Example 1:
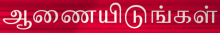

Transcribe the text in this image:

ஆணையிடுங்கள்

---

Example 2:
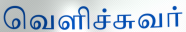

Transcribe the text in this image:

வெளிச்சுவர்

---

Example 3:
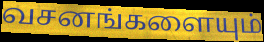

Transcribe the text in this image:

வசனங்களையும்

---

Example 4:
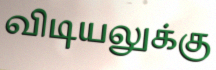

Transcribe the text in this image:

விடியலுக்கு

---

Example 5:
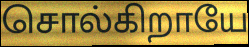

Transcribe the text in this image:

சொல்கிறாயே